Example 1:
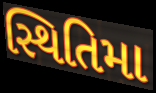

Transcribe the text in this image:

સ્થિતિમા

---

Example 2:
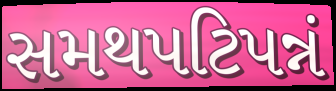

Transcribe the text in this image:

સમથપટિપન્નં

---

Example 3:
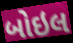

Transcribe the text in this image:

બોઇલ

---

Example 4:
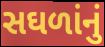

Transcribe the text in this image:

સઘળાંનું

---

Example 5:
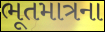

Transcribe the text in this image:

ભૂતમાત્રના